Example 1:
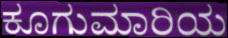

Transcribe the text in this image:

ಕೂಗುಮಾರಿಯ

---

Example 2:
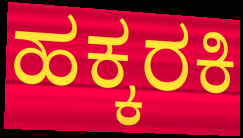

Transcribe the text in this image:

ಹಕ್ಕರಕಿ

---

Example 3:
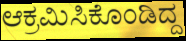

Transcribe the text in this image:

ಆಕ್ರಮಿಸಿಕೊಂಡಿದ್ದ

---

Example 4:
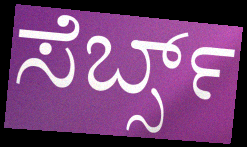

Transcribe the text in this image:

ಸೆರ್ಬ್ಸ್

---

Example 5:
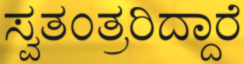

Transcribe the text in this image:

ಸ್ವತಂತ್ರರಿದ್ದಾರೆ